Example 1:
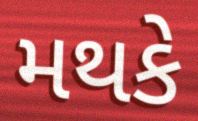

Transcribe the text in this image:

મથકે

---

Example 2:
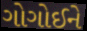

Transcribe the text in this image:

ગોગોઈને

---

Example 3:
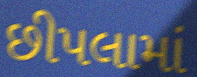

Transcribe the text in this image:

છીપલામાં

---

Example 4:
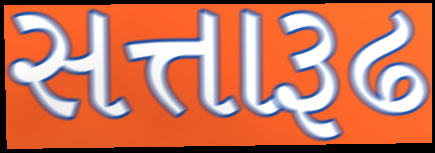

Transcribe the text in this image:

સત્તારૂઢ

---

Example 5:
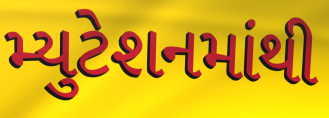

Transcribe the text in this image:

મ્યુટેશનમાંથી